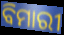
ବିମାରୀ